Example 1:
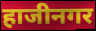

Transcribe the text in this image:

हाजीनगर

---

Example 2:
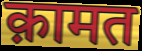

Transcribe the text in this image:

क़ामत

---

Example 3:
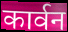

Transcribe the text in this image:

कार्वन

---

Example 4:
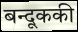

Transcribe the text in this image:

बन्दूककी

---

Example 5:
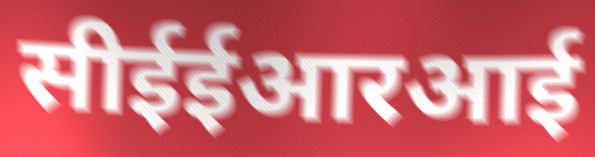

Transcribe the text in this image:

सीईईआरआई